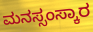
ಮನಸ್ಸಂಸ್ಕಾರ